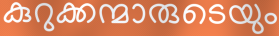
കുറുക്കന്മാരുടെയും